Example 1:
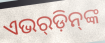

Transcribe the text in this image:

ଏଭର୍‍ଡ଼ିନ୍‌ଙ୍କ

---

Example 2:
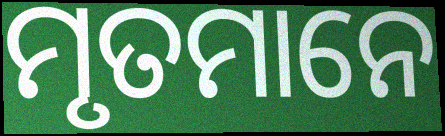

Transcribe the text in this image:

ମୃତମାନେ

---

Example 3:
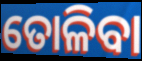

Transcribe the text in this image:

ତୋଳିବା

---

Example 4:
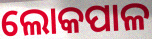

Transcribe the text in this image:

ଲୋକପାଳ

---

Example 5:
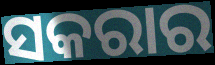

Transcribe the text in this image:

ସକରାର